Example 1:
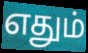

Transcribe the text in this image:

எதும்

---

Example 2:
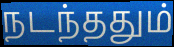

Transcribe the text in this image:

நடந்ததும்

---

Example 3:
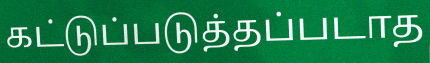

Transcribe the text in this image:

கட்டுப்படுத்தப்படாத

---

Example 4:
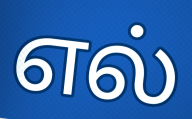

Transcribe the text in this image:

எல்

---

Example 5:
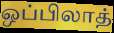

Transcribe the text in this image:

ஒப்பிலாத்